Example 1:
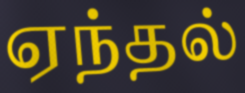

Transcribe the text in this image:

ஏந்தல்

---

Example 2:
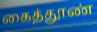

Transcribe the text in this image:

கைத்தூண்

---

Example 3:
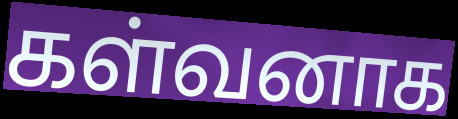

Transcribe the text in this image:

கள்வனாக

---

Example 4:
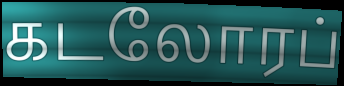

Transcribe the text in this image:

கடலோரப்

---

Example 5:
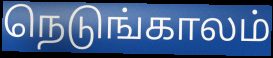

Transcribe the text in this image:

நெடுங்காலம்